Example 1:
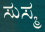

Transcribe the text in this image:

ಸುಸ್ಮ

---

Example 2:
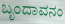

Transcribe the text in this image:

ಬೃಂದಾವನಂ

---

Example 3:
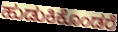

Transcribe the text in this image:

ಹುಡುಕಿಕೊಂಡರೆ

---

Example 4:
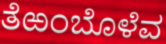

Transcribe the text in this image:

ತೆಱಂಬೊಳೆವ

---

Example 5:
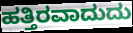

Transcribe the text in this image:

ಹತ್ತಿರವಾದುದು